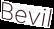
Bevil